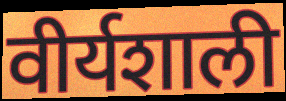
वीर्यशाली